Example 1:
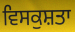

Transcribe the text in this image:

ਵਿਸਕੁਸ਼ਤਾ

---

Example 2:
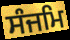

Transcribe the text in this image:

ਸੰਜਮਿ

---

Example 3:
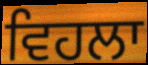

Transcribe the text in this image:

ਵਿਹਲਾ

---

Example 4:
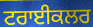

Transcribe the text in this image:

ਟਰਾਈਕਲਰ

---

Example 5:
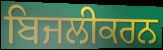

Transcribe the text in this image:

ਬਿਜਲੀਕਰਨ